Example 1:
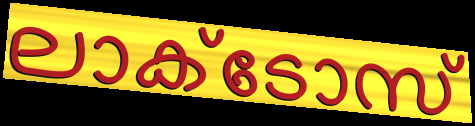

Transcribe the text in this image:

ലാക്ടോസ്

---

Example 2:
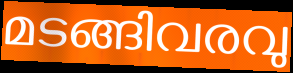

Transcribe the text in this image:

മടങ്ങിവരവു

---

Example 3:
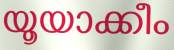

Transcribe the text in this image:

യൂയാക്കീം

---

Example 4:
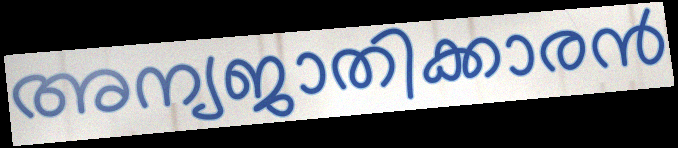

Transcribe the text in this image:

അന്യജാതിക്കാരൻ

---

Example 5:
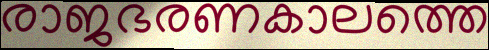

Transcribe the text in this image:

രാജഭരണകാലത്തെ